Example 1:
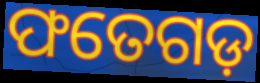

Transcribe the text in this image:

ଫତେଗଡ଼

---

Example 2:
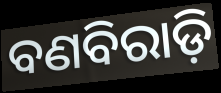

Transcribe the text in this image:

ବଣବିରାଡ଼ି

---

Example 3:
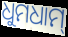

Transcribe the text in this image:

ଧୁମଧାମ୍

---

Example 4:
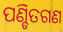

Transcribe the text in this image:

ପଣ୍ଡିତଗଣ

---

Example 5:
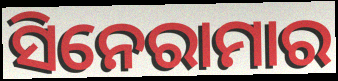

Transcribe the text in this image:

ସିନେରାମାର